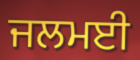
ਜਲਮਈ